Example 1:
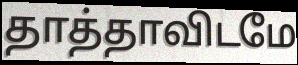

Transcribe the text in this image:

தாத்தாவிடமே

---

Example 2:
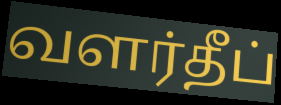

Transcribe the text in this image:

வளர்தீப்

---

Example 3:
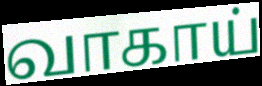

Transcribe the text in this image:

வாகாய்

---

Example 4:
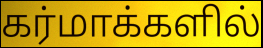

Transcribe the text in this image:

கர்மாக்களில்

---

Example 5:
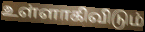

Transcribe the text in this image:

உள்ளாகிவிடும்